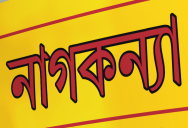
নাগকন্যা